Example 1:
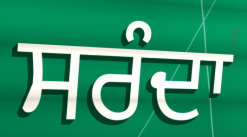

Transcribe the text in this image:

ਸਰੰਦਾ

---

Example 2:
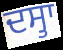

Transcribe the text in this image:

ਦਸ੍ਤਾ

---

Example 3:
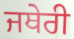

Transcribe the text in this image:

ਜਥੇਰੀ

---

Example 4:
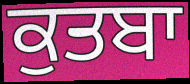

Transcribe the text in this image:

ਕੁਤਬਾ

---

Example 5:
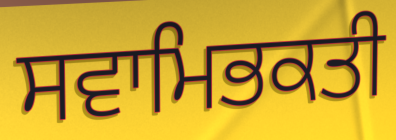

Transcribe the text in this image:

ਸਵਾਮਿਭਕਤੀ